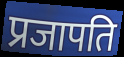
प्रजापति